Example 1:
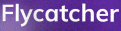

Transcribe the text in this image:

Flycatcher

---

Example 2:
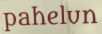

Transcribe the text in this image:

pahelun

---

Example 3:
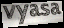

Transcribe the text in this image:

vyasa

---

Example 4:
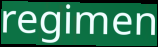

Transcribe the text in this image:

regimen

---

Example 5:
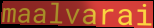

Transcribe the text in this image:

maalvarai